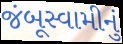
જંબૂસ્વામીનું